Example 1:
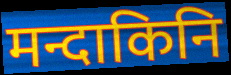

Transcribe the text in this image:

मन्दाकिनि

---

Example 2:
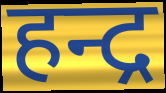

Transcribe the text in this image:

हन्द्र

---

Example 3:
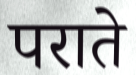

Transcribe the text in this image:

पराते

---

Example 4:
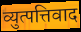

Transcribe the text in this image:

व्युत्पत्तिवाद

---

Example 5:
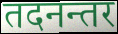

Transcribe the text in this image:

तदनन्तर